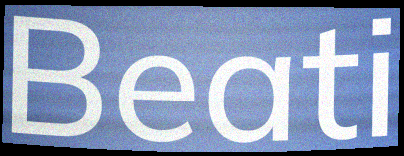
Beati